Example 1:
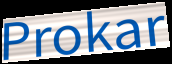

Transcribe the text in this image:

Prokar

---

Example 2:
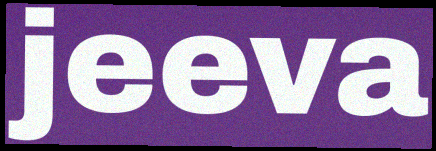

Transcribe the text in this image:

jeeva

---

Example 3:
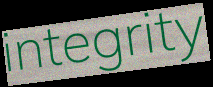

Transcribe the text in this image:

integrity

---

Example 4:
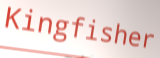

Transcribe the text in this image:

Kingfisher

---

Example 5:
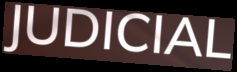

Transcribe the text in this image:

JUDICIAL